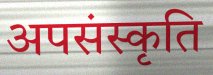
अपसंस्कृति